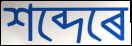
শব্দেৰে